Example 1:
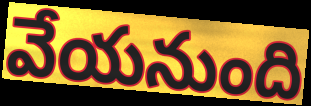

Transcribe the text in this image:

వేయనుంది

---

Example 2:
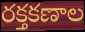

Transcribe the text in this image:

రక్తకణాల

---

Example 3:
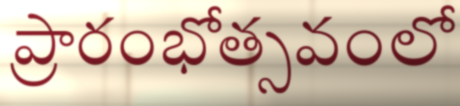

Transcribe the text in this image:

ప్రారంభోత్సవంలో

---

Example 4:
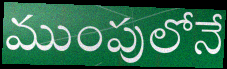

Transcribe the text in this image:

ముంపులోనే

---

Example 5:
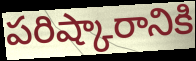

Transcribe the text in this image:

పరిష్కారానికి